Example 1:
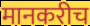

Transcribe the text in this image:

मानकरीच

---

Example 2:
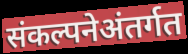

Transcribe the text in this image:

संकल्पनेअंतर्गत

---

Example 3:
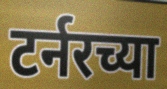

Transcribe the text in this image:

टर्नरच्या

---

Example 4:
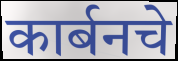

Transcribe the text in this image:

कार्बनचे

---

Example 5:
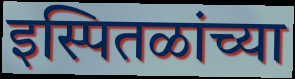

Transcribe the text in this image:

इस्पितळांच्या